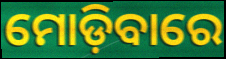
ମୋଡ଼ିବାରେ